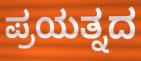
ಪ್ರಯತ್ನದ